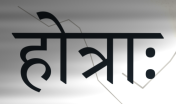
होत्राः